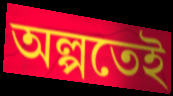
অল্পতেই